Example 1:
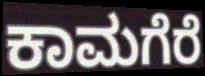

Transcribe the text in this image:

ಕಾಮಗೆರೆ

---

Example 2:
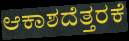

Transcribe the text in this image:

ಆಕಾಶದೆತ್ತರಕೆ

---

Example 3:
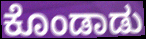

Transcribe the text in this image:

ಕೊಂಡಾಡು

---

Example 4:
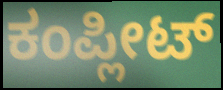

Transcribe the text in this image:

ಕಂಪ್ಲೀಟ್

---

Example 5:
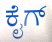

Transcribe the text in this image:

ಕೈಗ್